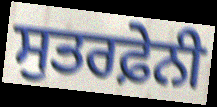
ਸੁਤਰਫ਼ੇਨੀ